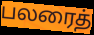
பலரைத்